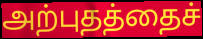
அற்புதத்தைச்